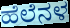
ಹೆಲೆನಳ